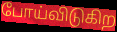
போய்விடுகிற